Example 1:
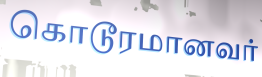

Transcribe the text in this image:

கொடூரமானவர்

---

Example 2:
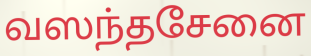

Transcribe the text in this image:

வஸந்தசேனை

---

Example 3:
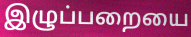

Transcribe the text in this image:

இழுப்பறையை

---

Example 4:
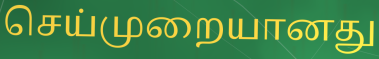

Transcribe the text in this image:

செய்முறையானது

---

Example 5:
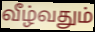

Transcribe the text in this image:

வீழ்வதும்